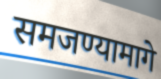
समजण्यामागे